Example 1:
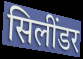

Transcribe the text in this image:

सिलींडर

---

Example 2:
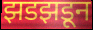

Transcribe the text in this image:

झडझडून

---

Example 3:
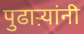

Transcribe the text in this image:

पुढाऱ्‍यांनी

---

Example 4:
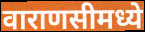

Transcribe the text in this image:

वाराणसीमध्ये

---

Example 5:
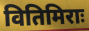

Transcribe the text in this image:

वितिमिराः